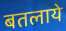
बतलाये